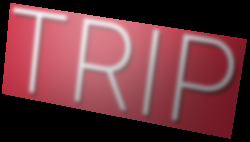
TRIP